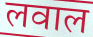
लवाल